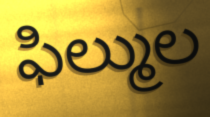
ఫిల్ముల